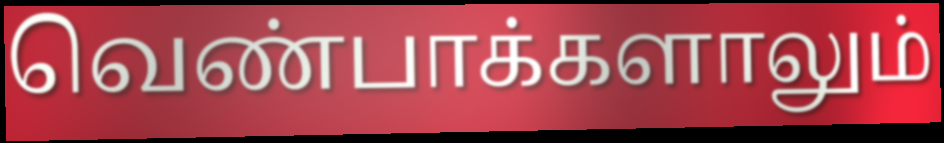
வெண்பாக்களாலும்